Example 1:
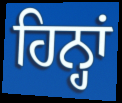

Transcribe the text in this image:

ਹਿਨ੍ਹਾਂ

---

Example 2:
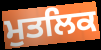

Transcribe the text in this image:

ਮੁਤਲਿਕ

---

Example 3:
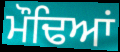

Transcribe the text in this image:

ਮੌਢਿਆਂ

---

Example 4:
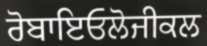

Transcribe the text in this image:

ਰੋਬਾਇਓਲੋਜੀਕਲ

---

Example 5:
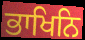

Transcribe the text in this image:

ਭਾਖਿਨਿ